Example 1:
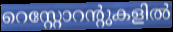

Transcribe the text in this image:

റെസ്റ്റോറന്റുകളിൽ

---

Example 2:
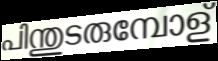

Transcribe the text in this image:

പിന്തുടരുമ്പോള്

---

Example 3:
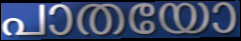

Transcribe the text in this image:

പാതയോ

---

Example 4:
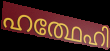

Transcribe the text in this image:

ഹത്ഥേഹി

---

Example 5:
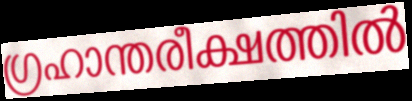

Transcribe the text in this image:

ഗ്രഹാന്തരീക്ഷത്തിൽ